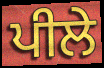
ਪੀਲੇ